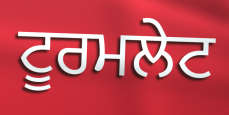
ਟੂਰਮਲੇਟ